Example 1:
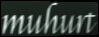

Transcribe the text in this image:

muhurt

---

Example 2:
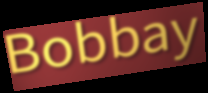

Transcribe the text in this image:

Bobbay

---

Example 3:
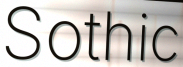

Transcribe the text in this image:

Sothic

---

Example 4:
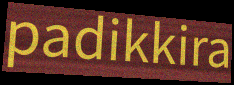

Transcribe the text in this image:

padikkira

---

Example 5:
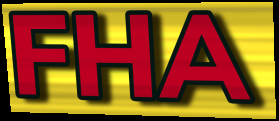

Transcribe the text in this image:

FHA